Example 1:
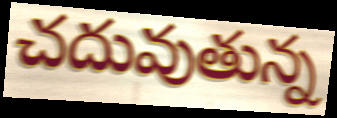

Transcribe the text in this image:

చదువుతున్న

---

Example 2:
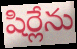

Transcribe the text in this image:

షిర్లేను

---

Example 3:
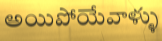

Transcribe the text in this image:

అయిపోయేవాళ్ళు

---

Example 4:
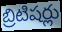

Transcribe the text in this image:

బ్రిటిషర్లు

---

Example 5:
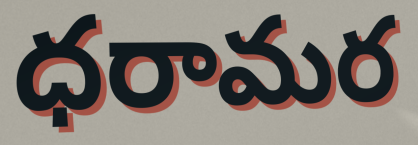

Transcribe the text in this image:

ధరామర